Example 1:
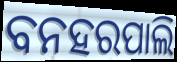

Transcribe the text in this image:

ବନହରପାଲି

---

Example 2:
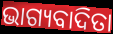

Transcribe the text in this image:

ଭାଗ୍ୟବାଦିତା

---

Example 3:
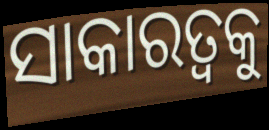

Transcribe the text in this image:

ସାକାରତ୍ଵକୁ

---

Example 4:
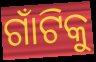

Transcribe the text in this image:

ଗାଁଟିକୁ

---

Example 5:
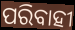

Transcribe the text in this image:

ପରିବାହୀ